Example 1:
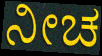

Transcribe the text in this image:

ನೀಚ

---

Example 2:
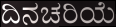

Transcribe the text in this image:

ದಿನಚರಿಯೆ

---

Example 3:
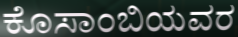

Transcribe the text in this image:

ಕೊಸಾಂಬಿಯವರ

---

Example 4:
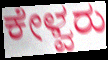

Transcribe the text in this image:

ಕೇಳ್ವರು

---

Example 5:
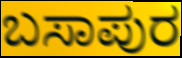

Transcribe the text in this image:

ಬಸಾಪುರ